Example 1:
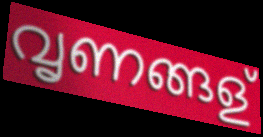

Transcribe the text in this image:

വൃണങ്ങള്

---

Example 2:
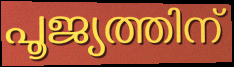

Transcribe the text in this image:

പൂജ്യത്തിന്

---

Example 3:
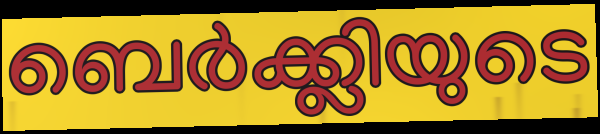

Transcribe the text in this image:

ബെർക്ക്ലിയുടെ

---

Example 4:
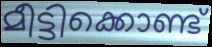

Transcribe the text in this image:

മീട്ടിക്കൊണ്ട്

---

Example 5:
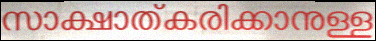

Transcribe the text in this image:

സാക്ഷാത്കരിക്കാനുള്ള